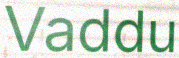
Vaddu